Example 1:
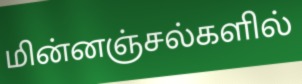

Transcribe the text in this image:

மின்னஞ்சல்களில்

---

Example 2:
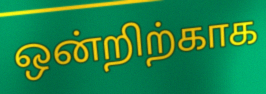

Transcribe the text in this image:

ஒன்றிற்காக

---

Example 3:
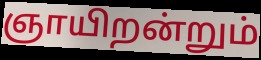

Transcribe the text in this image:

ஞாயிறன்றும்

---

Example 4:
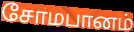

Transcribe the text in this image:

சோமபானம்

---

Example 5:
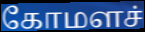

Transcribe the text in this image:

கோமளச்